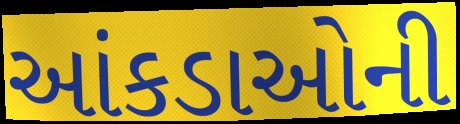
આંકડાઓની